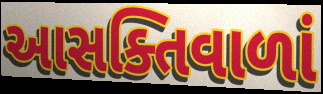
આસક્તિવાળાં